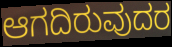
ಆಗದಿರುವುದರ